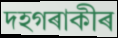
দহগৰাকীৰ